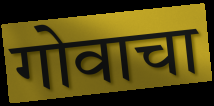
गोवाचा